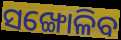
ସଙ୍ଖୋଳିବ